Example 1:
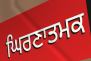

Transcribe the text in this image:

ਘਿਰਣਾਤਮਕ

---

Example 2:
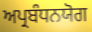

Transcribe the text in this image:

ਅਪ੍ਰਬੰਧਨਯੋਗ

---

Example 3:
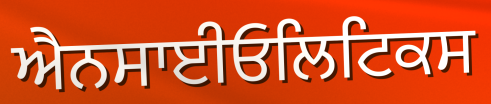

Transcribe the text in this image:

ਐਨਸਾਈਓਲਿਟਿਕਸ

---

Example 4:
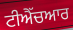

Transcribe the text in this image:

ਟੀਐੱਚਆਰ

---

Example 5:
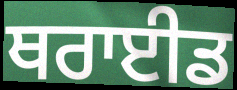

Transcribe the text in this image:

ਥਰਾਈਡ